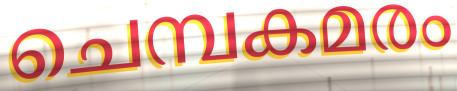
ചെമ്പകമരം